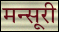
मन्सूरी